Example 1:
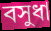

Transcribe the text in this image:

বসুধা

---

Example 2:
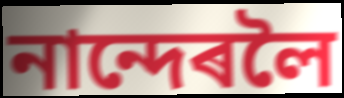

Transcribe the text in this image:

নান্দেৰলৈ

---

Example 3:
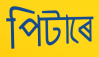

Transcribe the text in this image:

পিটাৰে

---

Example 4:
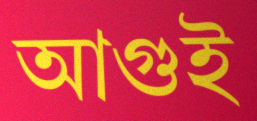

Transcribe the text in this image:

আগুই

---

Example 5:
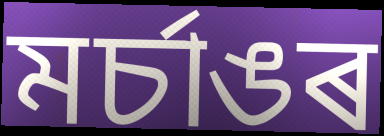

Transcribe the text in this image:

মৰ্চাঙৰ